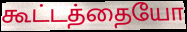
கூட்டத்தையோ